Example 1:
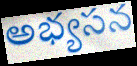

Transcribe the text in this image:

అభ్యసన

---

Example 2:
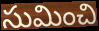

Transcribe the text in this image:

సుమించి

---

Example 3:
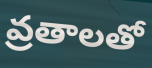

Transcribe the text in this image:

వ్రతాలతో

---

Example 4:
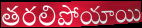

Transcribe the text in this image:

తరలిపోయాయి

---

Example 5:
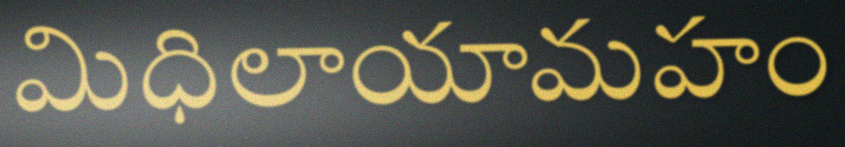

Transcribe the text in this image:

మిధిలాయామహం